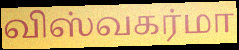
விஸ்வகர்மா